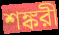
শঙ্করী